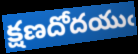
క్షణదోదయుఁ